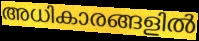
അധികാരങ്ങളിൽ